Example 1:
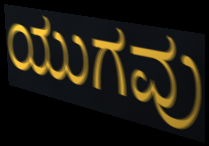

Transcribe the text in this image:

ಯುಗವು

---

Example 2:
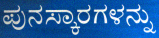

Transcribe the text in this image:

ಪುನಸ್ಕಾರಗಳನ್ನು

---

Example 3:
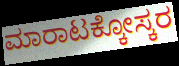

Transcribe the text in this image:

ಮಾರಾಟಕ್ಕೋಸ್ಕರ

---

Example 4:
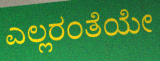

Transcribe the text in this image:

ಎಲ್ಲರಂತೆಯೇ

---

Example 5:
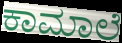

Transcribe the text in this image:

ಕಾಮಾಲೆ